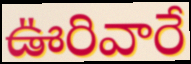
ఊరివారే